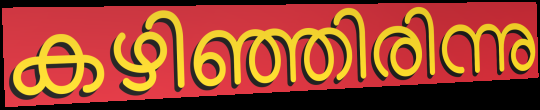
കഴിഞ്ഞിരിന്നു